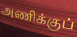
அணிக்குப்